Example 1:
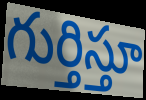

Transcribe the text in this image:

గుర్తిస్తూ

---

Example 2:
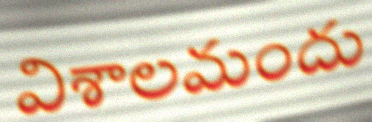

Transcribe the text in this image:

విశాలమందు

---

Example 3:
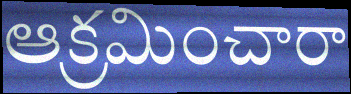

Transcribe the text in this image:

ఆక్రమించారా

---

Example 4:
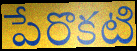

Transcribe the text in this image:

పేరొకటి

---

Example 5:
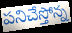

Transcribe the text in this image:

పనిచేస్తోన్న